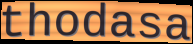
thodasa